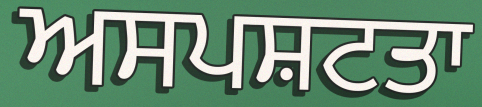
ਅਸਪਸ਼ਟਤਾ